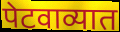
पेटवाव्यात